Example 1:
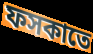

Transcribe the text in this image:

ফসকাতে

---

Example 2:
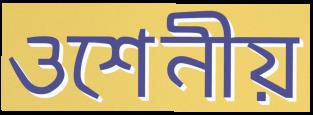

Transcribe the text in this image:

ওশেনীয়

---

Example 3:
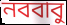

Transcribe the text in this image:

নববাবু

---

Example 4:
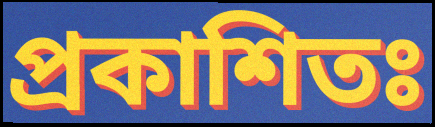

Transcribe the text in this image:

প্রকাশিতঃ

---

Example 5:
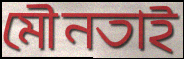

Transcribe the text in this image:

মৌনতাই